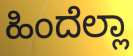
ಹಿಂದೆಲ್ಲಾ